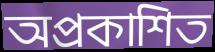
অপ্রকাশিত